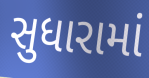
સુધારામાં